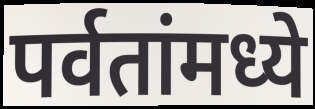
पर्वतांमध्ये